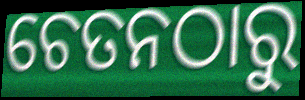
ଚେତନଠାରୁ